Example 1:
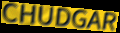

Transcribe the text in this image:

CHUDGAR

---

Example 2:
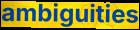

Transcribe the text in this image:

ambiguities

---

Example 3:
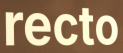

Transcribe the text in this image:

recto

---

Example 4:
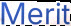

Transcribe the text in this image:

Merit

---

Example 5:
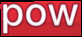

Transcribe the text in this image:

pow